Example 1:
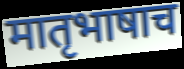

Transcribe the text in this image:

मातृभाषाच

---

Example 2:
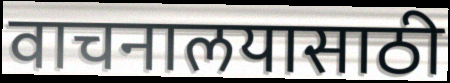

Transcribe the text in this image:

वाचनालयासाठी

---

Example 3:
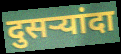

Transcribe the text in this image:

दुसर्‍यांदा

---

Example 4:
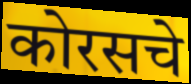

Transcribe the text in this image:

कोरसचे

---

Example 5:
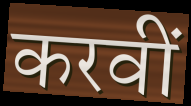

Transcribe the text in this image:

करवीं